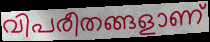
വിപരീതങ്ങളാണ്